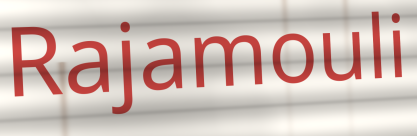
Rajamouli